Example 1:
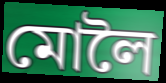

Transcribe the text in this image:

মোলৈ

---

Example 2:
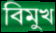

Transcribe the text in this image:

বিমুখ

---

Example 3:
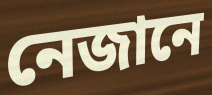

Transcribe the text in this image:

নেজানে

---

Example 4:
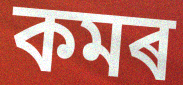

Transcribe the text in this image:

কমৰ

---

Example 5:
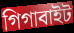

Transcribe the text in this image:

গিগাবাইট